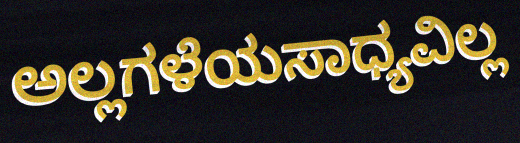
ಅಲ್ಲಗಳೆಯಸಾಧ್ಯವಿಲ್ಲ